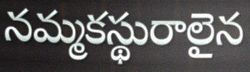
నమ్మకస్థురాలైన